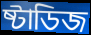
ষ্টাডিজ